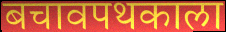
बचावपथकाला